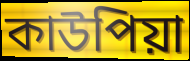
কাউপিয়া